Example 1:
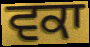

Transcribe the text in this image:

ਵਕਾ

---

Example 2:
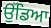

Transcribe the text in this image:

ਉੱਡਿਆ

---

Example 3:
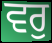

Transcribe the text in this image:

ਵਰੁ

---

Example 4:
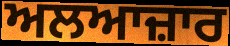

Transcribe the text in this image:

ਅਲਆਜ਼ਾਰ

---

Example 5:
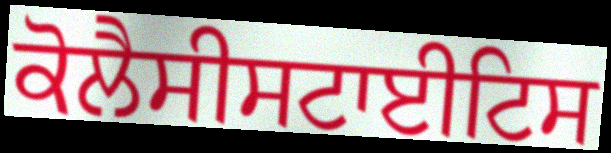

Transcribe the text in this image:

ਕੋਲੈਸੀਸਟਾਈਟਿਸ